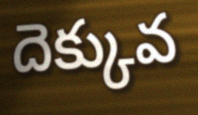
దెక్కువ